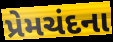
પ્રેમચંદના